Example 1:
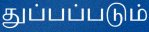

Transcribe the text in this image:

துப்பப்படும்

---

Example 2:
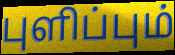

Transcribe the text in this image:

புளிப்பும்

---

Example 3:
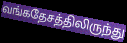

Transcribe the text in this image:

வங்கதேசத்திலிருந்து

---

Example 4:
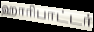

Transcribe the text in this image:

ஹாரிபாட்டர்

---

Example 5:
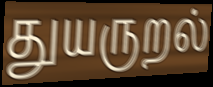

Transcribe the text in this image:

துயருறல்